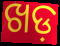
ଖଡ଼